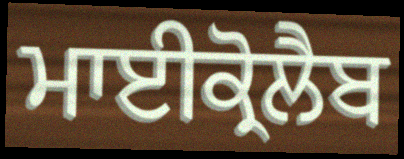
ਮਾਈਕ੍ਰੋਲੈਬ